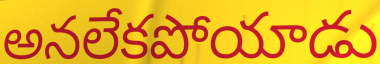
అనలేకపోయాడు